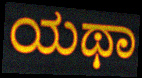
ಯಥಾ